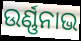
ଉର୍ଣ୍ଣନାଭ